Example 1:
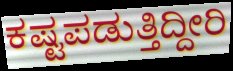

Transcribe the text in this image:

ಕಷ್ಟಪಡುತ್ತಿದ್ದೀರಿ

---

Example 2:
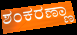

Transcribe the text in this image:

ಶಂಕರಣ್ಣಾ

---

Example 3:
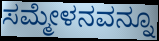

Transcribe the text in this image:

ಸಮ್ಮೇಳನವನ್ನೂ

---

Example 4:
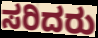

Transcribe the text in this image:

ಸರಿದರು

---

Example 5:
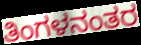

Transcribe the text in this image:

ತಿಂಗಳನಂತರ